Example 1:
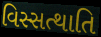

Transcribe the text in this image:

વિસ્સત્થાતિ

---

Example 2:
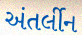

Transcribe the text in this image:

અંતર્લીન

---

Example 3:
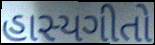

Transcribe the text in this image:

હાસ્યગીતો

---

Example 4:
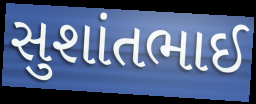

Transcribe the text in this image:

સુશાંતભાઈ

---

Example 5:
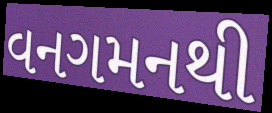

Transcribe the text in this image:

વનગમનથી